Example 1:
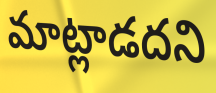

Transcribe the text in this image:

మాట్లాడదని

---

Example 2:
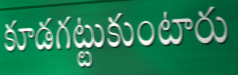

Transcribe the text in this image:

కూడగట్టుకుంటారు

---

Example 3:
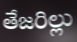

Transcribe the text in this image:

తేజరిల్లు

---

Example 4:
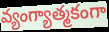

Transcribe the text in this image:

వ్యంగ్యాత్మకంగా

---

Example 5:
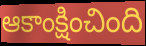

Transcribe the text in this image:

ఆకాంక్షించింది